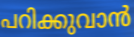
പറിക്കുവാൻ